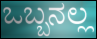
ಒಬ್ಬನಲ್ಲ